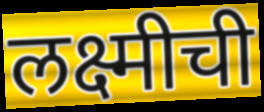
लक्ष्मीची